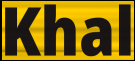
Khal